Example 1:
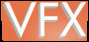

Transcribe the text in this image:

VFX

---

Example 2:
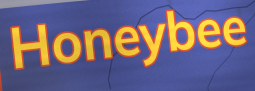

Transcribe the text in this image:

Honeybee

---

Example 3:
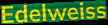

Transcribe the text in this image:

Edelweiss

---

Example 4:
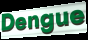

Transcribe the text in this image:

Dengue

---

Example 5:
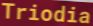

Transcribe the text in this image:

Triodia